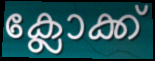
ക്ലോക്ക്